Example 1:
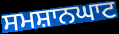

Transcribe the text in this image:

ਸਮਸ਼ਾਨਘਾਟ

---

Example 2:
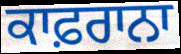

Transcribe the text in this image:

ਕਾਫ਼ਰਾਨਾ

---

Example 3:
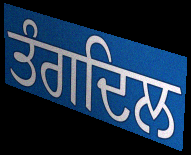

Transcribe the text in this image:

ਤੰਗਦਿਲ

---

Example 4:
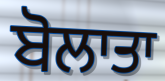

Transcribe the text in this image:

ਬੋਲਾਤਾ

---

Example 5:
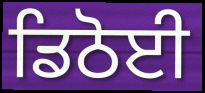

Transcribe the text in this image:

ਡਿਠੋਈ